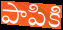
పాపికి